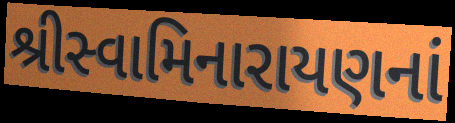
શ્રીસ્વામિનારાયણનાં